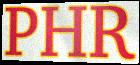
PHR